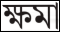
ক্ষমা